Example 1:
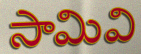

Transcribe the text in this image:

సామివి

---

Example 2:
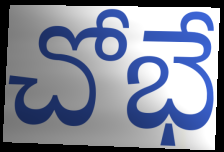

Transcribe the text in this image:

చోభే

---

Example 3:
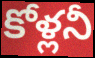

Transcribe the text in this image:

కోళ్లనీ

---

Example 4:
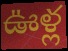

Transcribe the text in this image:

ఊళ్ల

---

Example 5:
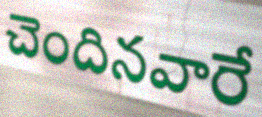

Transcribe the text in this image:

చెందినవారే